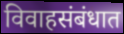
विवाहसंबंधात